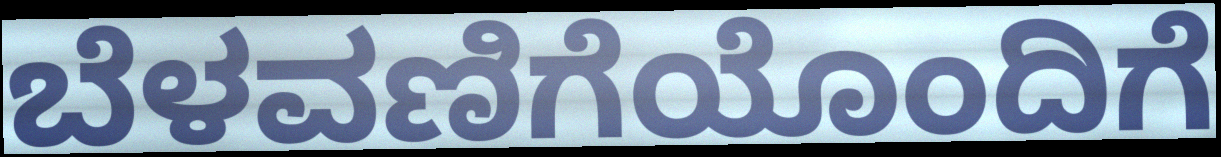
ಬೆಳವಣಿಗೆಯೊಂದಿಗೆ